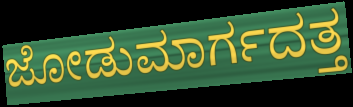
ಜೋಡುಮಾರ್ಗದತ್ತ